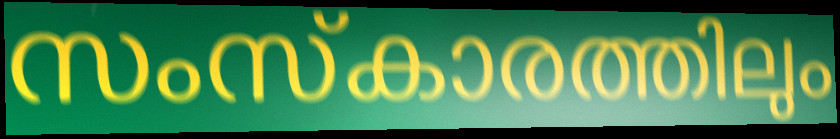
സംസ്‌കാരത്തിലും